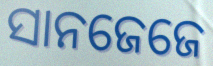
ସାନଜେଜେ